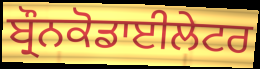
ਬ੍ਰੌਨਕੋਡਾਈਲੇਟਰ